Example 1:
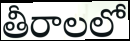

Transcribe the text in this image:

తీరాలలో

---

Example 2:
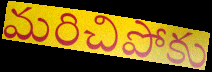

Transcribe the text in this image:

మరిచిపోకు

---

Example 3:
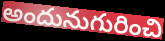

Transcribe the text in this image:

అందునుగురించి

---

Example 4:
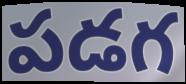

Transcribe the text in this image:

పడగ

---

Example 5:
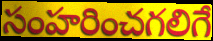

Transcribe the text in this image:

సంహరించగలిగే